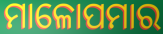
ମାଳୋପମାର